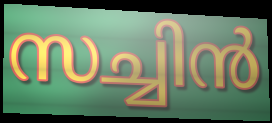
സച്ചിൻ